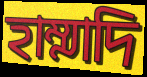
হাম্মাদি